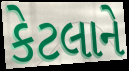
કેટલાને